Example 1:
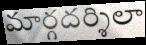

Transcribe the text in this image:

మార్గదర్శిలా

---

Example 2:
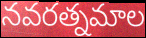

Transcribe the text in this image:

నవరత్నమాల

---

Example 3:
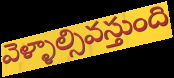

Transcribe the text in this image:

వెళ్ళాల్సివస్తుంది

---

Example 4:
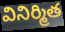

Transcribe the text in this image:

వినిర్మిత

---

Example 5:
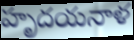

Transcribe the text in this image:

హృదయనాళ